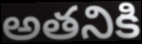
అతనికి